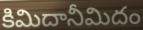
కిమిదానీమిదం